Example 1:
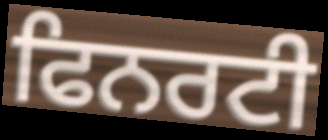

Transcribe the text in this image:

ਫਿਨਰਟੀ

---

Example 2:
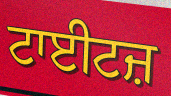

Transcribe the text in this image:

ਟਾਈਟਜ਼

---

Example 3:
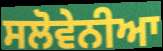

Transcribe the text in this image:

ਸਲੋਵੇਨੀਆ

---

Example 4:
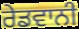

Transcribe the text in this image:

ਰੇਡਵਾਨੀ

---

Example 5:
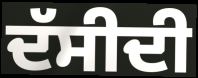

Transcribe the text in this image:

ਦੱਸੀਦੀ